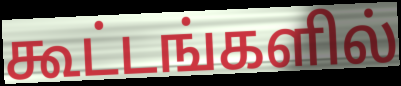
கூட்டங்களில்